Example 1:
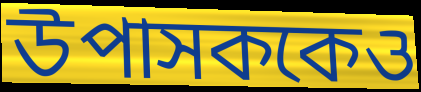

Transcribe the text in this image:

উপাসককেও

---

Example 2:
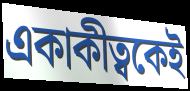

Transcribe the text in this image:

একাকীত্বকেই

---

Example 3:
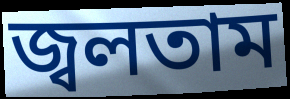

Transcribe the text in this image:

জ্বলতাম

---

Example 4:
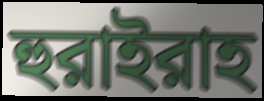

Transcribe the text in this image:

হুরাইরাহ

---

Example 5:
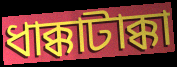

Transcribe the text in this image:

ধাক্কাটাক্কা